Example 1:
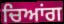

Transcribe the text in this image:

ਚਿਆਂਗ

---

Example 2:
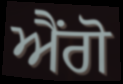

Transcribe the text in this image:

ਐਂਗੋ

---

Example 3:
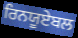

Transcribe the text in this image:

ਰਿਨਯੂਏਬਲ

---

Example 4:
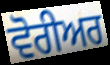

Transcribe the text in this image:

ਵੋਰੀਅਰ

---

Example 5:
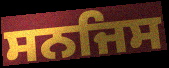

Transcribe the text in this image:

ਸਨਜਿਸ